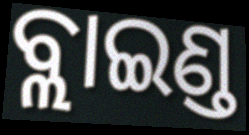
ବ୍ଲାଇଣ୍ଡ